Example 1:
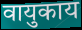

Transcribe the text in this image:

वायुकाय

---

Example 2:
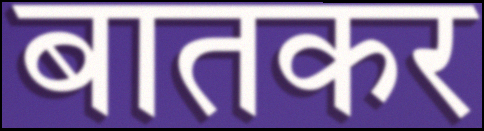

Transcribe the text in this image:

बातकर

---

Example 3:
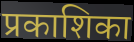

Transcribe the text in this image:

प्रकाशिका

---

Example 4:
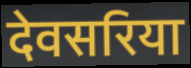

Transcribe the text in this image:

देवसरिया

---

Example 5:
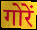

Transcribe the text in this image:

गोरें